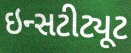
ઇન્સટીટ્યૂટ